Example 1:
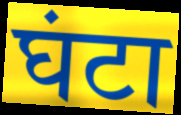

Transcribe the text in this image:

घंटा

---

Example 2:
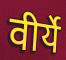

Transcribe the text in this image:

वीर्ये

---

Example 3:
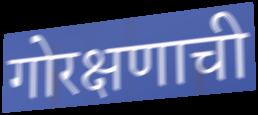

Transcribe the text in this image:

गोरक्षणाची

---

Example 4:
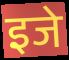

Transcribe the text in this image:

इजे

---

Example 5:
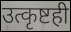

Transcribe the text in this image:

उत्कृष्टही